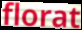
florat